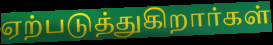
ஏற்படுத்துகிறார்கள்